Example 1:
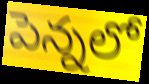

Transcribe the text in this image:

పెన్నలో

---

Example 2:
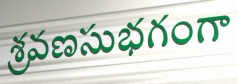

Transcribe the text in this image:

శ్రవణసుభగంగా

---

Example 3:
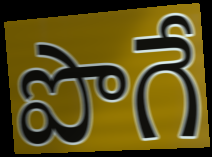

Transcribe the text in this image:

పొగే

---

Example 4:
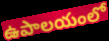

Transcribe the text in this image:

ఉపాలయంలో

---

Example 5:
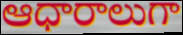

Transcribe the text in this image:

ఆధారాలుగా